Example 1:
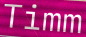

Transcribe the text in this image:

Timm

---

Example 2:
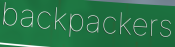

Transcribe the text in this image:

backpackers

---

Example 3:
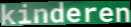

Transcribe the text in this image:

kinderen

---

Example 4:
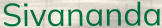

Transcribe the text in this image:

Sivananda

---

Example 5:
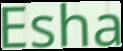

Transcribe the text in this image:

Esha